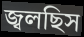
জ্বলছিস